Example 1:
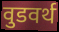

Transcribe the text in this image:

वुडवर्थ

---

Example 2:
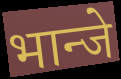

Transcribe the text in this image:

भान्जे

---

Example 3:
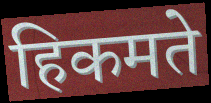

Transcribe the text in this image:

हिकमते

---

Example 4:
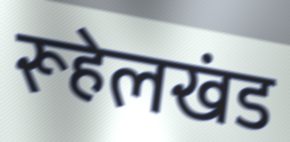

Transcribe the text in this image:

रूहेलखंड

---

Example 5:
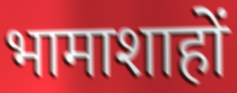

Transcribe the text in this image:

भामाशाहों